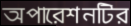
অপারেশনটির